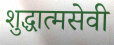
शुद्धात्मसेवी